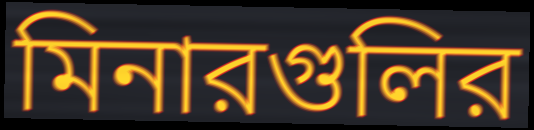
মিনারগুলির